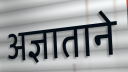
अज्ञाताने